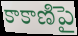
కాకాణిపై